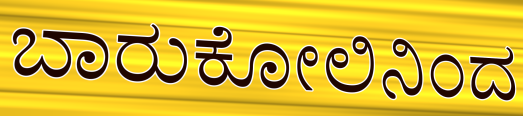
ಬಾರುಕೋಲಿನಿಂದ